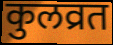
कुलव्रत